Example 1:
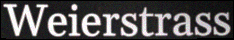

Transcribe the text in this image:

Weierstrass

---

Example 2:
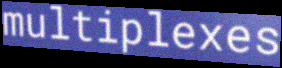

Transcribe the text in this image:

multiplexes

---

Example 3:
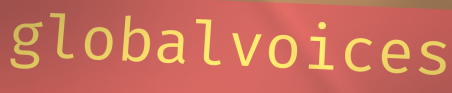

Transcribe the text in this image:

globalvoices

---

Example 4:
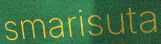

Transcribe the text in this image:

smarisuta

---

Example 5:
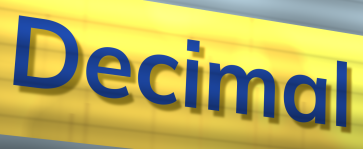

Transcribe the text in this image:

Decimal